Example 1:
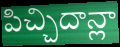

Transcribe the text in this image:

పిచ్చిదాన్లా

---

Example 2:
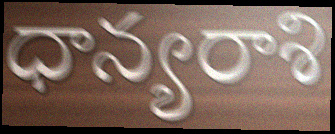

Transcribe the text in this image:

ధాన్యరాశి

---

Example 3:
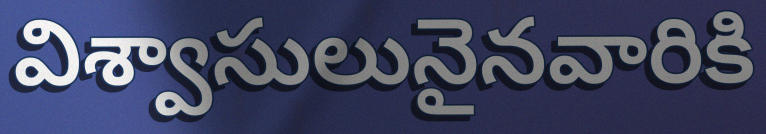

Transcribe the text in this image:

విశ్వాసులునైనవారికి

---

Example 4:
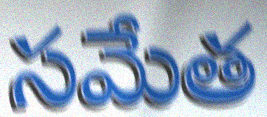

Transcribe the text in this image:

సమేత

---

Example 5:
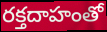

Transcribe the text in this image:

రక్తదాహంతో